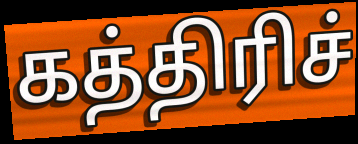
கத்திரிச்